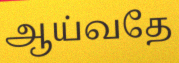
ஆய்வதே